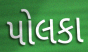
પોલકા